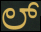
ಲ್